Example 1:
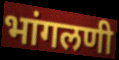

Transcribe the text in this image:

भांगलणी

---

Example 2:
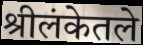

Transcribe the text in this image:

श्रीलंकेतले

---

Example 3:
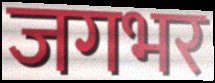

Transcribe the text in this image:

जगभर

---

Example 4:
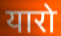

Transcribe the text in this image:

यारो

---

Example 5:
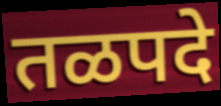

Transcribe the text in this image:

तळपदे